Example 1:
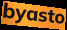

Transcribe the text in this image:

byasto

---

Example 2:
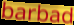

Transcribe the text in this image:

barbad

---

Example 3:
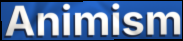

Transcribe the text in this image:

Animism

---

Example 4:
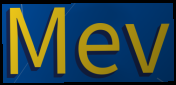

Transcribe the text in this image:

Mev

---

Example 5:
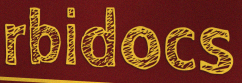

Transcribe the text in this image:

rbidocs